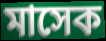
মাসেক